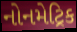
નોનમેટ્રિક